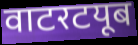
वाटरटयूब